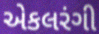
એકલરંગી